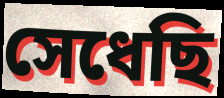
সেধেছি